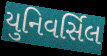
યુનિવર્સિલ